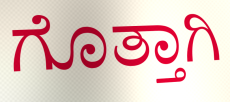
ಗೊತ್ತಾಗಿ